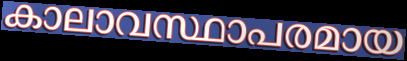
കാലാവസ്ഥാപരമായ